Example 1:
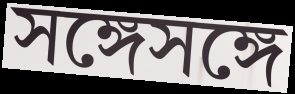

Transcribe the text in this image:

সঙ্গেসঙ্গে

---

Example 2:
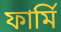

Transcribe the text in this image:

ফার্মি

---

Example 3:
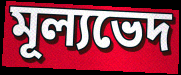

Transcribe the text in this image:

মূল্যভেদ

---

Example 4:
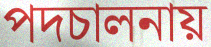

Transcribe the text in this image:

পদচালনায়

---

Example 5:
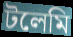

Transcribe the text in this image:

টলেমি